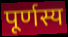
पूर्णस्य